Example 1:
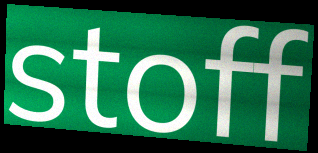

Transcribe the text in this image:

stoff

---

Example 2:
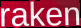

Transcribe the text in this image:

raken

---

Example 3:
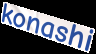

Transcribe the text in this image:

konashi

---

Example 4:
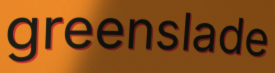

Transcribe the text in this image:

greenslade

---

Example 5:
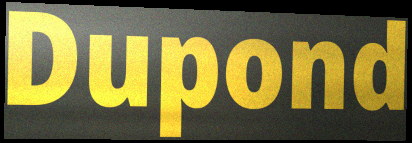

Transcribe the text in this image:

Dupond